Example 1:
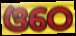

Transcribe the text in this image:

ଓଠେ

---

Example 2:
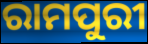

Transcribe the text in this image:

ରାମପୁରୀ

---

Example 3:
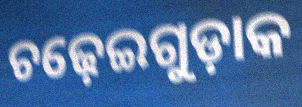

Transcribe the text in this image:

ଚଢ଼େଇଗୁଡ଼ାକ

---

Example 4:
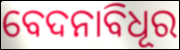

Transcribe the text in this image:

ବେଦନାବିଧୂର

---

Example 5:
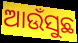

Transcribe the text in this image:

ଆଉଁସୁଛ